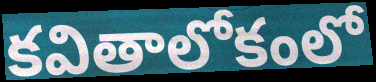
కవితాలోకంలో